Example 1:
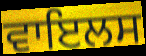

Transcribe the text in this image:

ਵਾਇਲਸ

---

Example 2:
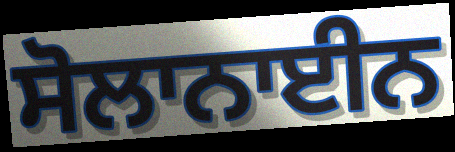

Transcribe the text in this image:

ਸੋਲਾਨਾਈਨ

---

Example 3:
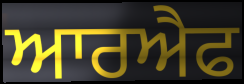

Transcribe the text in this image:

ਆਰਐਫ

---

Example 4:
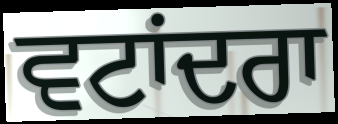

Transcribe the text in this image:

ਵਟਾਂਦਰਾ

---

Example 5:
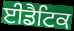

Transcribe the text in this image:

ਈਡੈਟਿਕ